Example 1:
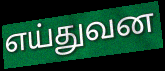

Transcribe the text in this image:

எய்துவன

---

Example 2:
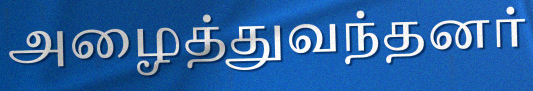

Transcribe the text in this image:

அழைத்துவந்தனர்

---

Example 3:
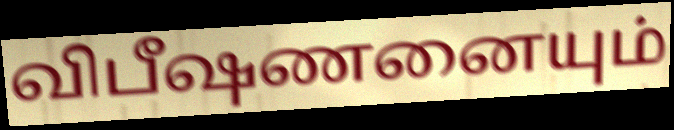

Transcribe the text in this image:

விபீஷணனையும்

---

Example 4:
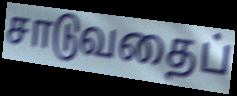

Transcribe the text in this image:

சாடுவதைப்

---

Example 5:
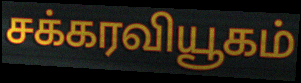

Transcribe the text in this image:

சக்கரவியூகம்